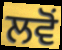
ਲਵੋਂ